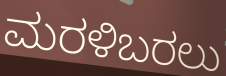
ಮರಳಿಬರಲು